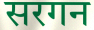
सरगन